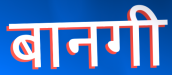
बानगी